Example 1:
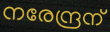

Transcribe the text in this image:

നരേന്ദ്രന്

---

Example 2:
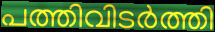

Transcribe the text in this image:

പത്തിവിടർത്തി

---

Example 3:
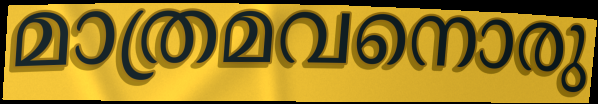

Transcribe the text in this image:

മാത്രമവനൊരു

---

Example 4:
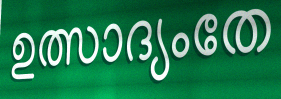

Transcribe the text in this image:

ഉത്സാദ്യംതേ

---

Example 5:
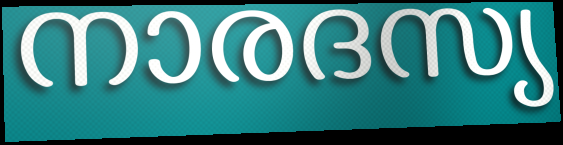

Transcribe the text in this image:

നാരദസ്യ